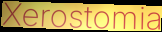
Xerostomia